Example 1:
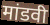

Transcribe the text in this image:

मांडवी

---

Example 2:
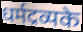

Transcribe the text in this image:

धर्मद्रव्यके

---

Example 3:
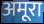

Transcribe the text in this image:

अमूरा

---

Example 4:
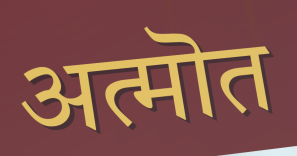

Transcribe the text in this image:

अत्मॊत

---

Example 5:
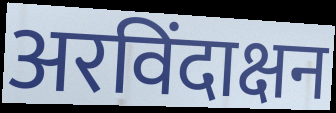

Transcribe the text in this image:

अरविंदाक्षन